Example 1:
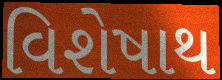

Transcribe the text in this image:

વિશેષાથ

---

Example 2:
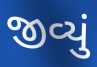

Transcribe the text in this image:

જીવ્યું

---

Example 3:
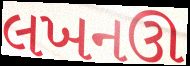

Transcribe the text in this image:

લખનઊ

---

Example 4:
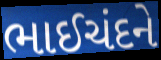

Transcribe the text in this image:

ભાઈચંદને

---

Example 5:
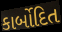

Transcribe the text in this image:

કાર્બોદિત